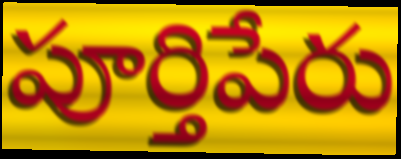
పూర్తిపేరు